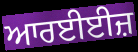
ਆਰਈਈਜ਼